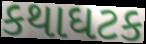
કથાઘટક